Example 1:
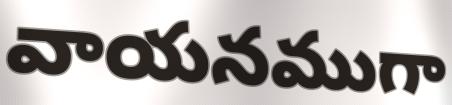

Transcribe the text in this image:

వాయనముగా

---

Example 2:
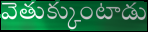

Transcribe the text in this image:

వెతుక్కుంటాడు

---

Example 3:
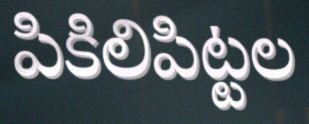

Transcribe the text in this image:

పికిలిపిట్టల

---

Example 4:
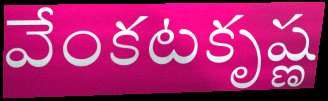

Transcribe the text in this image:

వేంకటకృష్ణ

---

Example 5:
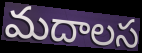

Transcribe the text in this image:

మదాలస